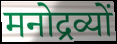
मनोद्रव्यों